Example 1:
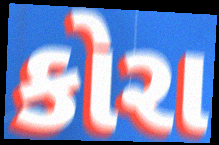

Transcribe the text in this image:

કોરા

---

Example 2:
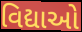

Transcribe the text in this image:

વિદ્યાઓ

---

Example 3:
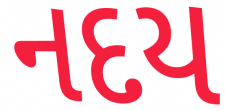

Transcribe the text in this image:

નદય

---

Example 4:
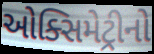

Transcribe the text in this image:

ઓક્સિમેટ્રીનો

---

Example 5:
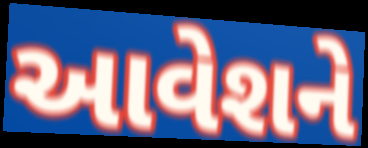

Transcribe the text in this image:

આવેશને